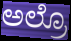
ಅಲ್ರೊ